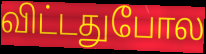
விட்டதுபோல